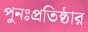
পুনঃপ্রতিষ্ঠার